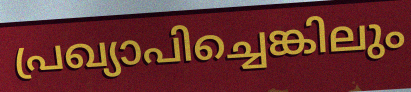
പ്രഖ്യാപിച്ചെങ്കിലും